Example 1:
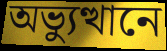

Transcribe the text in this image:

অভ্যুত্থানে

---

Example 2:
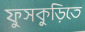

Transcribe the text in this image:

ফুসকুড়িতে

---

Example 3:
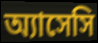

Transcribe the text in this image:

অ্যাসেসি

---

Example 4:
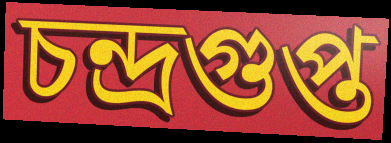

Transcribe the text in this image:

চন্দ্রগুপ্ত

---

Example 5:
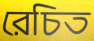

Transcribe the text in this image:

রেচিত